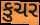
કુચર